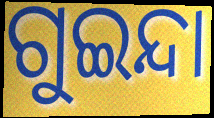
ଗୁଇନ୍ଦା